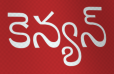
కెన్యన్